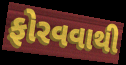
ફોરવવાથી